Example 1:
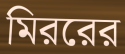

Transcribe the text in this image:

মিররের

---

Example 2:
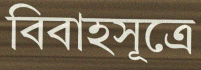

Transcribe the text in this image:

বিবাহসূত্রে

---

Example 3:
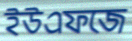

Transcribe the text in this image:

ইউএফজে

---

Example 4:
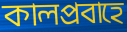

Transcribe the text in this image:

কালপ্রবাহে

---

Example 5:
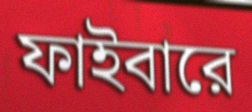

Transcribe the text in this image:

ফাইবারে